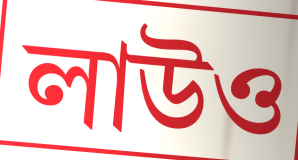
লাউও